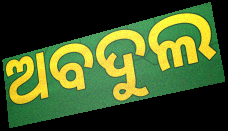
ଅବଦୁଲ